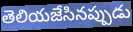
తెలియజేసినప్పుడు